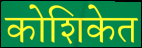
कोशिकेत